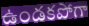
ఉండకపోగా